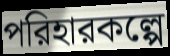
পরিহারকল্পে